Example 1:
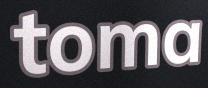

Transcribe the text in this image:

toma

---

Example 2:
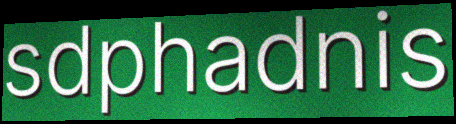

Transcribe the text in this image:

sdphadnis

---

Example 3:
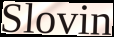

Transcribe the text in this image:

Slovin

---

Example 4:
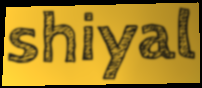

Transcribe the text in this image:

shiyal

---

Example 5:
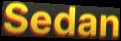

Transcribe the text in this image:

Sedan